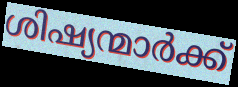
ശിഷ്യന്മാർക്ക്